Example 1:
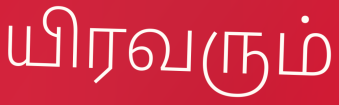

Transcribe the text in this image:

யிரவரும்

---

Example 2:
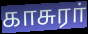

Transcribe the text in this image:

காசுரர்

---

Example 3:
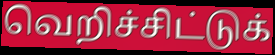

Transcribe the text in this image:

வெறிச்சிட்டுக்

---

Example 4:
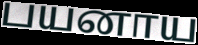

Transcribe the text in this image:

பயனாய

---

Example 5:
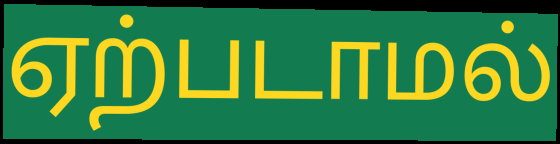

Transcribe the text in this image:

ஏற்படாமல்